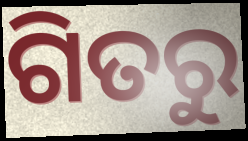
ଗିତରୁ